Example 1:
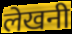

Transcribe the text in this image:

लेखनी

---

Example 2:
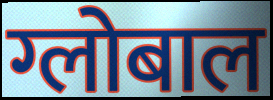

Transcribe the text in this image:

ग्लोबाल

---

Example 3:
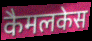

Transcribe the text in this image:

कैमलकेस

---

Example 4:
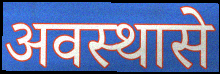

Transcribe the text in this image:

अवस्थासे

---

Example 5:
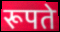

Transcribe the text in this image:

रूपते